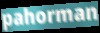
pahorman